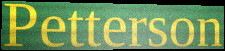
Petterson